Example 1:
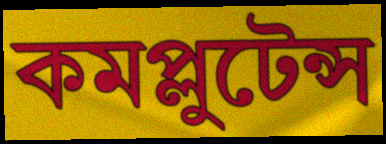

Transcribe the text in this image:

কমপ্লুটেন্স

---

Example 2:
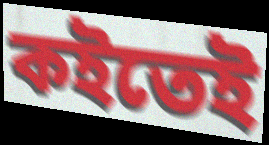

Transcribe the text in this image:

কইতেই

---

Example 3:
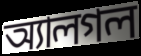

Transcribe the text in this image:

অ্যালগল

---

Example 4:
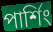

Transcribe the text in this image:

পার্শিং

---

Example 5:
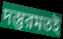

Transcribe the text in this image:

দস্তুরমতই